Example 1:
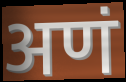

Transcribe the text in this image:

अणं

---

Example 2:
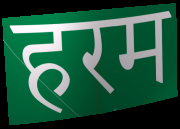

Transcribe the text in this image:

हरम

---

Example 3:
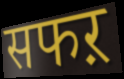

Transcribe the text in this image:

सफऱ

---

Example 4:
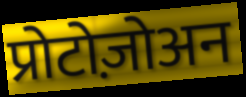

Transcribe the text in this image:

प्रोटोज़ोअन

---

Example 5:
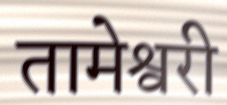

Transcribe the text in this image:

तामेश्वरी